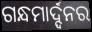
ଗନ୍ଧମାର୍ଦ୍ଦନର